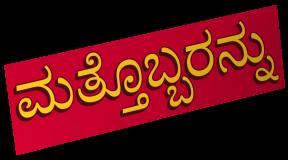
ಮತ್ತೊಬ್ಬರನ್ನು